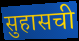
सुहासची